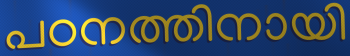
പഠനത്തിനായി